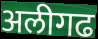
अलीगढ